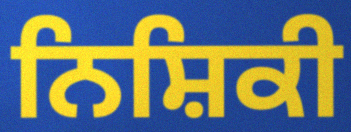
ਨਿਸ਼ਿਕੀ